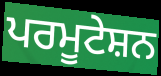
ਪਰਮੂਟੇਸ਼ਨ